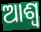
ଆଶ୍ୱ